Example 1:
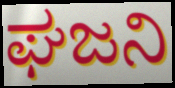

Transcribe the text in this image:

ಘಜನಿ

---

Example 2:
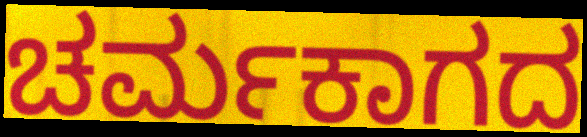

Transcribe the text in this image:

ಚರ್ಮಕಾಗದ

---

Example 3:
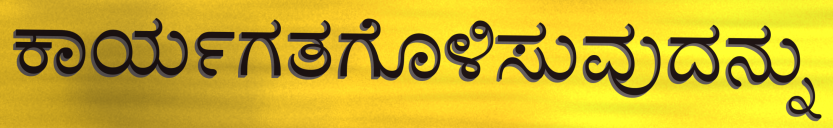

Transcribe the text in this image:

ಕಾರ್ಯಗತಗೊಳಿಸುವುದನ್ನು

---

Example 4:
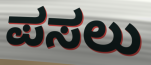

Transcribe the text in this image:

ಪಸಲು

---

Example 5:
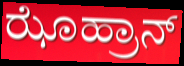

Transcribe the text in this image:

ಝೊಹ್ರಾನ್